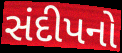
સંદીપનો